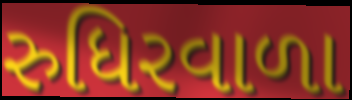
રુધિરવાળા